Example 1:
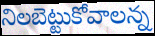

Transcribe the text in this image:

నిలబెట్టుకోవాలన్న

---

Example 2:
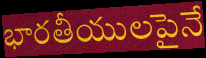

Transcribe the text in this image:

భారతీయులపైనే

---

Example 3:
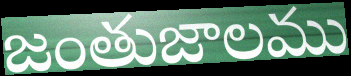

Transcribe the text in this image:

జంతుజాలము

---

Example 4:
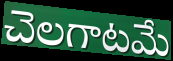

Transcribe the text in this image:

చెలగాటమే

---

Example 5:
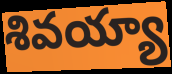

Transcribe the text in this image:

శివయ్యా